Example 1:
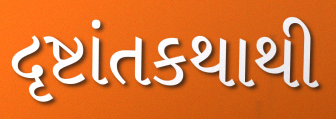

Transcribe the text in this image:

દૃષ્ટાંતકથાથી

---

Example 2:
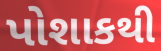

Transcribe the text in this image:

પોશાકથી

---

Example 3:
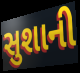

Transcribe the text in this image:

સુશાની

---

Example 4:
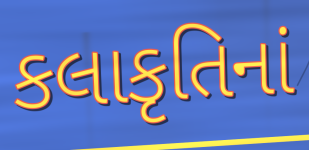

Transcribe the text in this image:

કલાકૃતિનાં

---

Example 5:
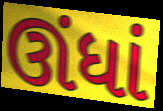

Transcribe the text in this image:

ઊંધાં